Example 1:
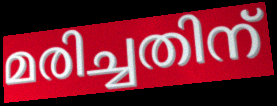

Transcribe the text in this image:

മരിച്ചതിന്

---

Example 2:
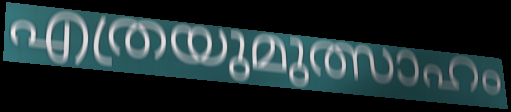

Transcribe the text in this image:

എത്രയുമുത്സാഹം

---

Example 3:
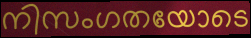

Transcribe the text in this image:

നിസംഗതയോടെ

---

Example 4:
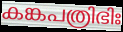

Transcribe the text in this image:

കങ്കപത്രിഭിഃ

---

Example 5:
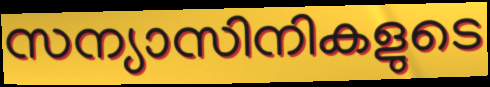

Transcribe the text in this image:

സന്യാസിനികളുടെ